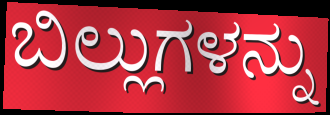
ಬಿಲ್ಲುಗಳನ್ನು